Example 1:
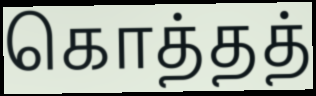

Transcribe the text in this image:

கொத்தத்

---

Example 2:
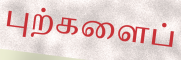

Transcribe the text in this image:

புற்களைப்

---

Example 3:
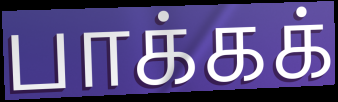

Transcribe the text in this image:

பாக்கக்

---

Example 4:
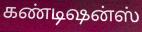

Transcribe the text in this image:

கண்டிஷன்ஸ்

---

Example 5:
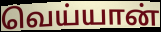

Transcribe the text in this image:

வெய்யான்